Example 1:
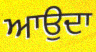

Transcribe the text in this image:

ਆਉਦਾ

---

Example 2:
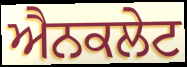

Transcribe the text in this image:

ਐਨਕਲੇਟ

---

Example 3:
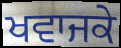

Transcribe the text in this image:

ਖਵਾਜਕੇ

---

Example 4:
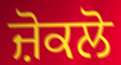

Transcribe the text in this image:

ਜ਼ੋਕਲੋ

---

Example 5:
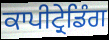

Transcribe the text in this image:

ਕਾਪੀਟ੍ਰੇਡਿੰਗ